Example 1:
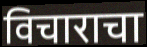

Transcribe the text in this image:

विचाराचा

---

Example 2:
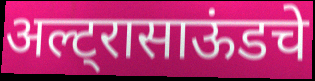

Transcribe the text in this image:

अल्ट्रासाऊंडचे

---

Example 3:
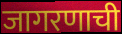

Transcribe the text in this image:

जागरणाची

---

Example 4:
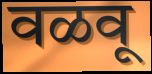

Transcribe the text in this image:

वळवू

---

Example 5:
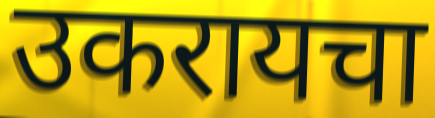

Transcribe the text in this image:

उकरायचा